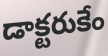
డాక్టరుకేం